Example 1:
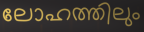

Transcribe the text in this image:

ലോഹത്തിലും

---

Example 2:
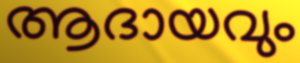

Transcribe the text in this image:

ആദായവും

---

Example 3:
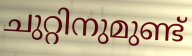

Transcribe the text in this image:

ചുറ്റിനുമുണ്ട്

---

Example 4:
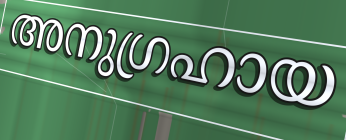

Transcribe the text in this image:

അനുഗ്രഹായ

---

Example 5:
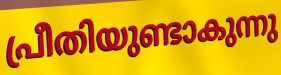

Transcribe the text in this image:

പ്രീതിയുണ്ടാകുന്നു